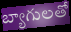
బ్యాగులతో